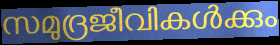
സമുദ്രജീവികൾക്കും